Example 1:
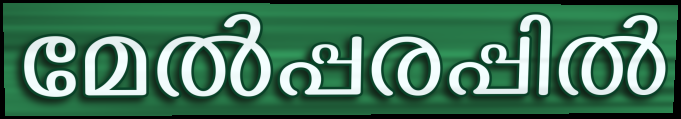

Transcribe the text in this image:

മേൽപ്പരപ്പിൽ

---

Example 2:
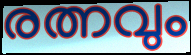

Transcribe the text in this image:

രത്നവും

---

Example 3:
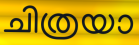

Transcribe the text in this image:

ചിത്രയാ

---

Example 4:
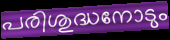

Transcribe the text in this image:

പരിശുദ്ധനോടും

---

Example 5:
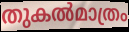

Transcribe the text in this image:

തുകൽമാത്രം